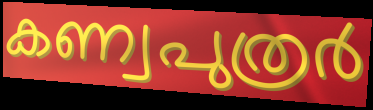
കണ്വപുത്രർ